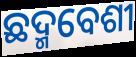
ଛଦ୍ମବେଶୀ